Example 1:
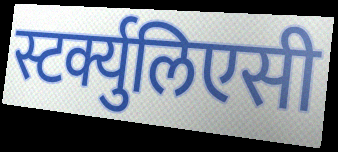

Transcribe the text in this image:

स्टर्क्युलिएसी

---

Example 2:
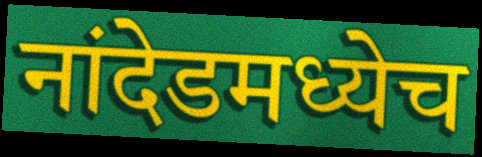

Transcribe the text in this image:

नांदेडमध्येच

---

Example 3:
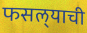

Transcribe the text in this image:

फसल्याची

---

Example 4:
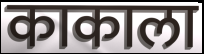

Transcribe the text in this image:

काकाला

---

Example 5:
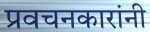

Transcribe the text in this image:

प्रवचनकारांनी